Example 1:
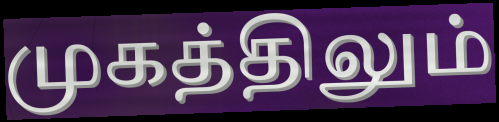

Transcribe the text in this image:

முகத்திலும்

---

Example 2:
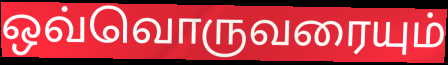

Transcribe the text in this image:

ஒவ்வொருவரையும்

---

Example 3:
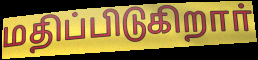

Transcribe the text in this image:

மதிப்பிடுகிறார்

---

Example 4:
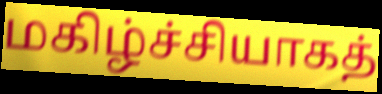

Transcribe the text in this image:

மகிழ்ச்சியாகத்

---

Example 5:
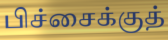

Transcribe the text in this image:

பிச்சைக்குத்